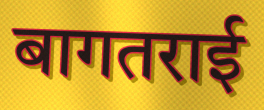
बागतराई